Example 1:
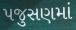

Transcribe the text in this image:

પજુસણમાં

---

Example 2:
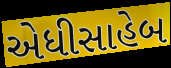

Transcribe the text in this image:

એધીસાહેબ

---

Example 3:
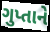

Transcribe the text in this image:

ગુપ્તાને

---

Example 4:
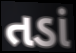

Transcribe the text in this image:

તડાં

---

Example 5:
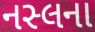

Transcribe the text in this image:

નસ્લના